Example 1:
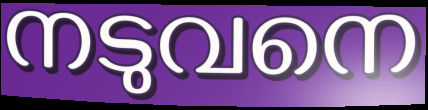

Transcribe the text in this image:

നടുവനെ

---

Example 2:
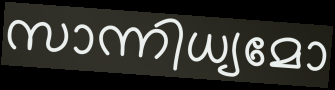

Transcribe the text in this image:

സാന്നിധ്യമോ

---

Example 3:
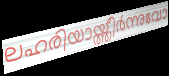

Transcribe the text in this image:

ലഹരിയായ്ത്തീർന്നുവോ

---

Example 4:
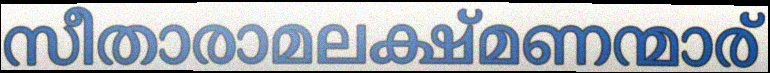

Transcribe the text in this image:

സീതാരാമലക്ഷ്മണന്മാര്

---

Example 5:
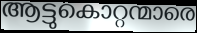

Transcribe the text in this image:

ആട്ടുകൊറ്റന്മാരെ